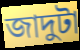
জাদুটা